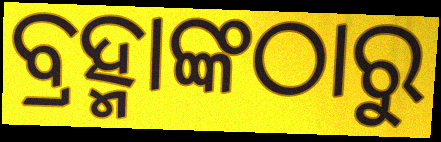
ବ୍ରହ୍ମାଙ୍କଠାରୁ